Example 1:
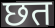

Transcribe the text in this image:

छत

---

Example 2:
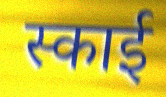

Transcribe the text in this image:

स्काई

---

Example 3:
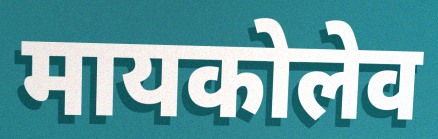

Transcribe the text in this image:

मायकोलेव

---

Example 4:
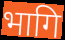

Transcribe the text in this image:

भागि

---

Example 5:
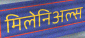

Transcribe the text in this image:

मिलेनिअल्स